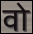
वो